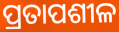
ପ୍ରତାପଶୀଳ